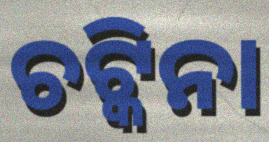
ଚଟ୍କିନା